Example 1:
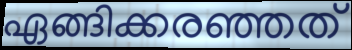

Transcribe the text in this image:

ഏങ്ങിക്കരഞ്ഞത്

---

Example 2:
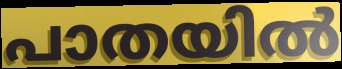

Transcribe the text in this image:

പാതയിൽ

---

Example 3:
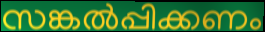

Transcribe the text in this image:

സങ്കൽപ്പിക്കണം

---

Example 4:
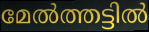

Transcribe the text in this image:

മേൽത്തട്ടിൽ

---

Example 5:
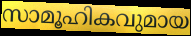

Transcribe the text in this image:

സാമൂഹികവുമായ